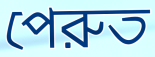
পেরুত